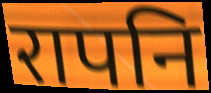
रापनि